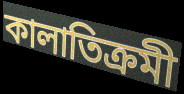
কালাতিক্রমী